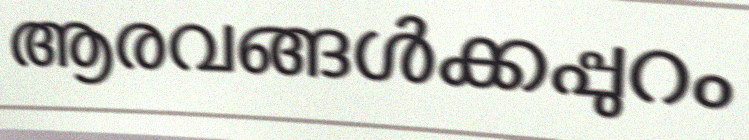
ആരവങ്ങൾക്കപ്പുറം